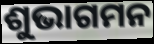
ଶୁଭାଗମନ